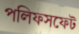
পলিফসফেট